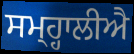
ਸਮ੍ਹ੍ਹਾਲੀਐ